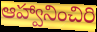
ఆహ్వానించిరి